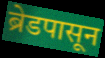
ब्रेडपासून